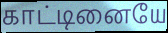
காட்டினையே